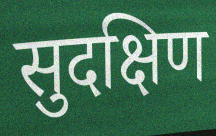
सुदक्षिण